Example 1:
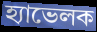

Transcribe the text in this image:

হ্যাভেলক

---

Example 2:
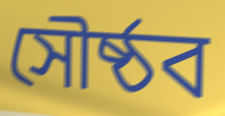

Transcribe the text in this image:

সৌষ্ঠব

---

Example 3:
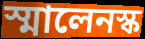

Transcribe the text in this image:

স্মালেনস্ক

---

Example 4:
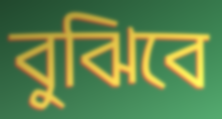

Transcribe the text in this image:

বুঝিবে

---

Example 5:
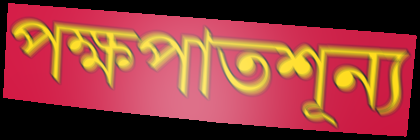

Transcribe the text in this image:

পক্ষপাতশূন্য